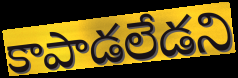
కాపాడలేడని